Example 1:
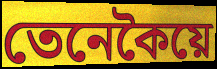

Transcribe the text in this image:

তেনেকৈয়ে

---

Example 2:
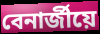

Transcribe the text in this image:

বেনাৰ্জীয়ে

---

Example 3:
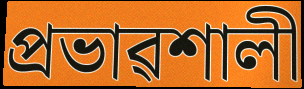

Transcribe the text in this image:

প্ৰভাৱশালী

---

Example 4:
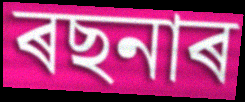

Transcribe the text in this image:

ৰছনাৰ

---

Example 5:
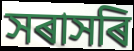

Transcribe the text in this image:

সৰাসৰি